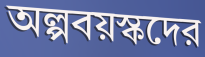
অল্পবয়স্কদের